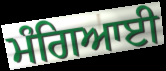
ਮੰਗਿਆਈ